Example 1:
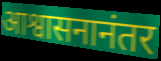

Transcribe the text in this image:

आश्वासनानंतर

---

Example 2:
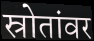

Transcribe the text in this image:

स्रोतांवर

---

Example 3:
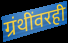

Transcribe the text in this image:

ग्रंथींवरही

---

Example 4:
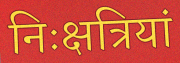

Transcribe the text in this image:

निःक्षत्रियां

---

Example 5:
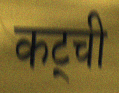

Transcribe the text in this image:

कट्ची